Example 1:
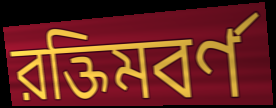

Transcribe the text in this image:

রক্তিমবর্ণ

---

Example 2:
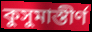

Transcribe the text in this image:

কুসুমাস্তীর্ণ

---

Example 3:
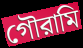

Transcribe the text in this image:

গৌরামি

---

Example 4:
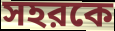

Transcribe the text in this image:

সহরকে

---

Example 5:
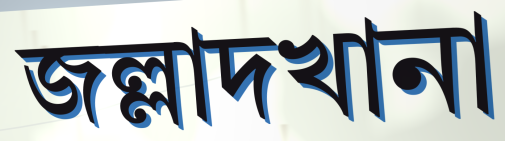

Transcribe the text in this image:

জল্লাদখানা